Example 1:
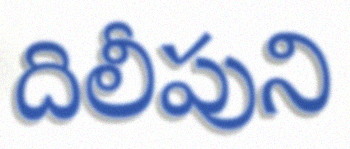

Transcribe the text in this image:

దిలీపుని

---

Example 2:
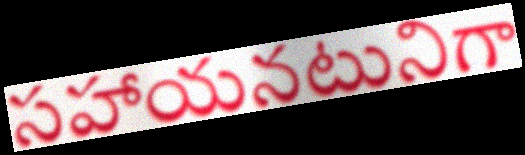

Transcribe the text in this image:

సహాయనటునిగా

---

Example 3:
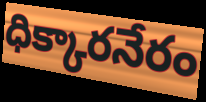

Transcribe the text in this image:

ధిక్కారనేరం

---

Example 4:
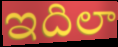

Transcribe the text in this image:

ఇదిలా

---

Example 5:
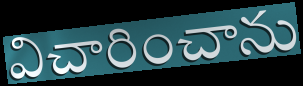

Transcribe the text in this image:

విచారించాను